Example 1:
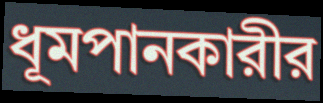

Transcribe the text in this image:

ধূমপানকারীর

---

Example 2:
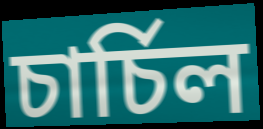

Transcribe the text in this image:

চার্চিল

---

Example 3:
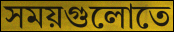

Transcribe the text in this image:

সময়গুলোতে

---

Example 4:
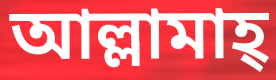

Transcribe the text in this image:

আল্লামাহ্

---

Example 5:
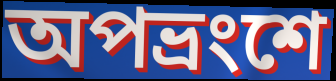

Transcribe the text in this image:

অপভ্রংশে